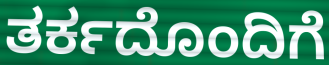
ತರ್ಕದೊಂದಿಗೆ